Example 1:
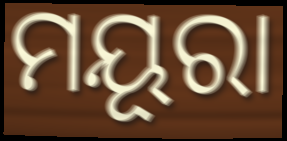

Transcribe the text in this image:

ମୟୂରା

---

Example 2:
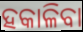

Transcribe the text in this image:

ହକାଳିବା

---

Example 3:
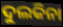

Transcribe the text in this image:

ଦୁଲକିନା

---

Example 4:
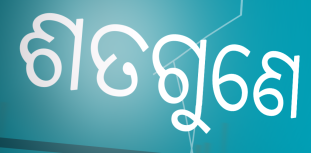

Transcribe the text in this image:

ଶତଗୁଣେ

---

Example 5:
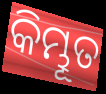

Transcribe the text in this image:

କିମ୍ଭୂତ